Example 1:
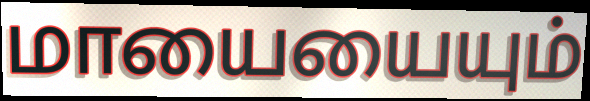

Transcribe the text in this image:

மாயையையும்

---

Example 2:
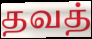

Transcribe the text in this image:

தவத்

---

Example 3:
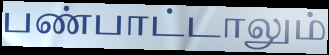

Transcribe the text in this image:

பண்பாட்டாலும்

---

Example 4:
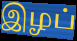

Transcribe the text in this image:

இழப்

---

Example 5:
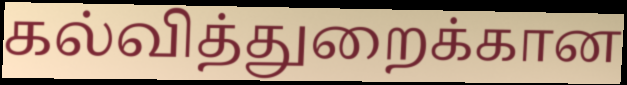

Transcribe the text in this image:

கல்வித்துறைக்கான